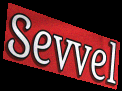
Sevvel